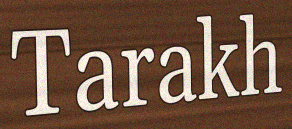
Tarakh